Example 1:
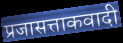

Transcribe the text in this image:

प्रजासत्ताकवादी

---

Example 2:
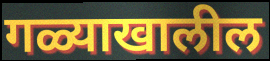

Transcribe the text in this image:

गळ्याखालील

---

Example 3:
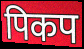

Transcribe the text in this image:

पिकप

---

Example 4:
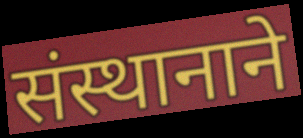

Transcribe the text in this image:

संस्थानाने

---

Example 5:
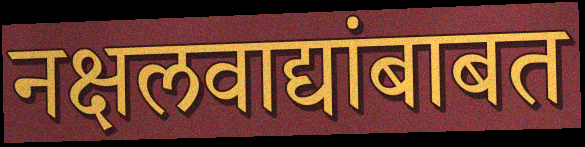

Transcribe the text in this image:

नक्षलवाद्यांबाबत